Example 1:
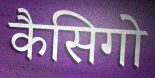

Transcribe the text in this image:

कैसिगो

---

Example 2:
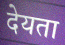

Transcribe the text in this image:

देयता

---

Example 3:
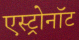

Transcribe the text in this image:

एस्ट्रोनॉट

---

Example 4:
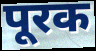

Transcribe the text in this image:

पूरक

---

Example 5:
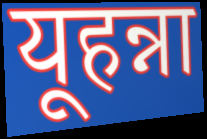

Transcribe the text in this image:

यूहन्ना